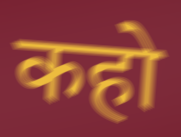
कहो